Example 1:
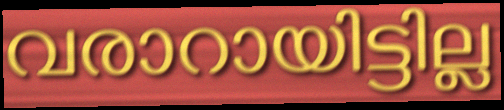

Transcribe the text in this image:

വരാറായിട്ടില്ല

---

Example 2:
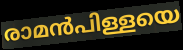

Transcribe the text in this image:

രാമൻപിള്ളയെ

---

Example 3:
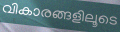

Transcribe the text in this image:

വികാരങ്ങളിലൂടെ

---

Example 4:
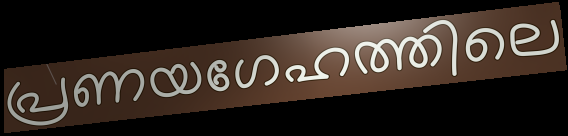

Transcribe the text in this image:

പ്രണയഗേഹത്തിലെ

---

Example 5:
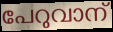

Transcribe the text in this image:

പേറുവാന്